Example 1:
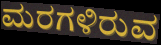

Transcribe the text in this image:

ಮರಗಳಿರುವ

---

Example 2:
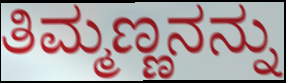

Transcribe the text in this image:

ತಿಮ್ಮಣ್ಣನನ್ನು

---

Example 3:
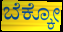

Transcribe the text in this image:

ಬೆಕ್ಕೋ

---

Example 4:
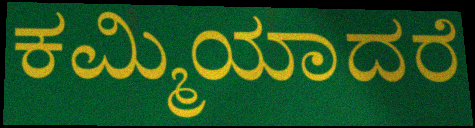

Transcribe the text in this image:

ಕಮ್ಮಿಯಾದರೆ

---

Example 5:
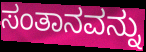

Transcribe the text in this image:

ಸಂತಾನವನ್ನು